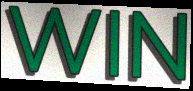
WIN